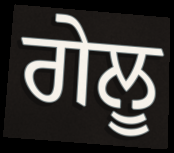
ਗੇਲੂ